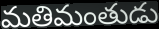
మతిమంతుడు